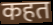
कहत